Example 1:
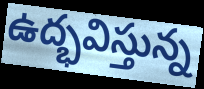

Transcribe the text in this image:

ఉద్భవిస్తున్న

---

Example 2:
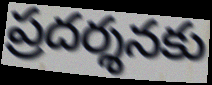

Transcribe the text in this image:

ప్రదర్శనకు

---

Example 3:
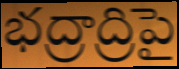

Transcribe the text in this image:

భద్రాద్రిపై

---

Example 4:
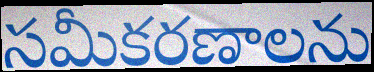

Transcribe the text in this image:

సమీకరణాలను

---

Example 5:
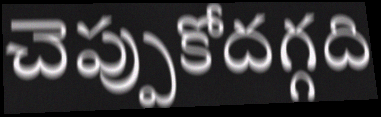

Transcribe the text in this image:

చెప్పుకోదగ్గది